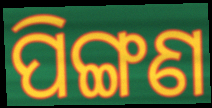
ପିଙ୍ଗଣ